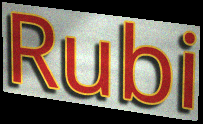
Rubi